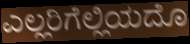
ಎಲ್ಲರಿಗೆಲ್ಲಿಯದೊ